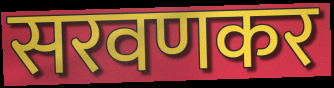
सरवणकर